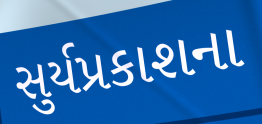
સુર્યપ્રકાશના